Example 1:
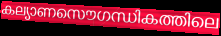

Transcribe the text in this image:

കല്യാണസൌഗന്ധികത്തിലെ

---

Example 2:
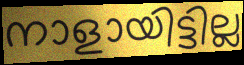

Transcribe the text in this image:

നാളായിട്ടില്ല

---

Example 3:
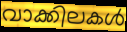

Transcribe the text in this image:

വാക്കിലകൾ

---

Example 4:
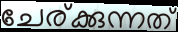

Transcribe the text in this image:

ചേര്ക്കുന്നത്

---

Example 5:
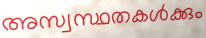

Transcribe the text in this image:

അസ്വസ്ഥതകൾക്കും